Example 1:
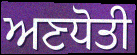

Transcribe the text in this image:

ਅਣਧੋਤੀ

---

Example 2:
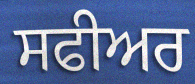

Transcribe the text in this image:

ਸਫੀਅਰ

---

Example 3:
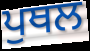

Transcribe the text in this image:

ਪੁਥਲ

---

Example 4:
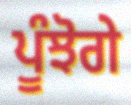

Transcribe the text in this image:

ਪੂੰਝੋਗੇ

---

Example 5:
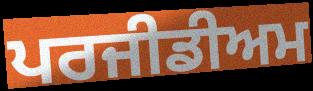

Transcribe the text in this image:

ਪਰਜੀਡੀਅਮ